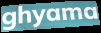
ghyama